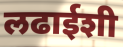
लढाईशी